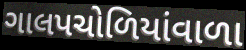
ગાલપચોળિયાંવાળા